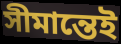
সীমান্তেই